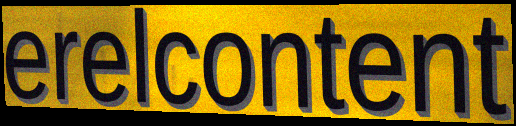
erelcontent